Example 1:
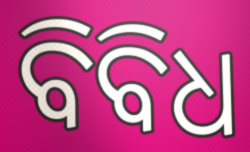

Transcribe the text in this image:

ବିବିଧ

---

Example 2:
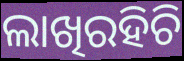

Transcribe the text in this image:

ଲାଖିରହିଚି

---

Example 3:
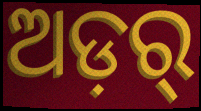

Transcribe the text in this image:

ଅଡ଼ର୍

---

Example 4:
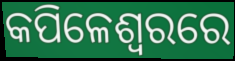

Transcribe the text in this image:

କପିଳେଶ୍ୱରରେ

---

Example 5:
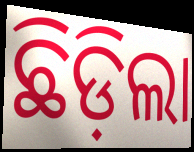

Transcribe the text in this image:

ଛିଡ଼ିଲା